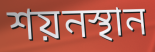
শয়নস্থান